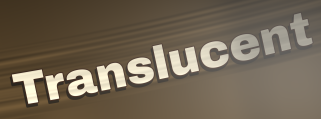
Translucent